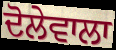
ਦੋਲੇਵਾਲਾ